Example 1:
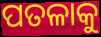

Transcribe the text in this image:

ପତଳାକୁ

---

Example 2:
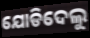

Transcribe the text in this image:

ଯୋଡିଦେଲୁ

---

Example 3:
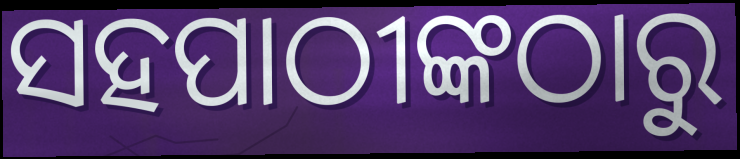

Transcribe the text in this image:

ସହପାଠୀଙ୍କଠାରୁ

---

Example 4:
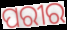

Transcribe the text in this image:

ପରୀର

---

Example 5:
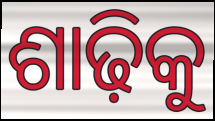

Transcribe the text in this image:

ଶାଢ଼ିକୁ